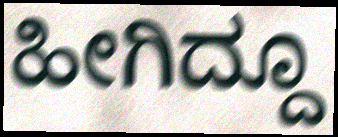
ಹೀಗಿದ್ದೂ